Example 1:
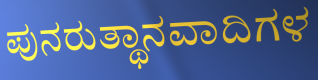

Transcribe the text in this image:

ಪುನರುತ್ಥಾನವಾದಿಗಳ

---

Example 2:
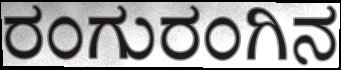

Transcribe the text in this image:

ರಂಗುರಂಗಿನ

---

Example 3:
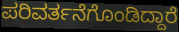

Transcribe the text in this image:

ಪರಿವರ್ತನೆಗೊಂಡಿದ್ದಾರೆ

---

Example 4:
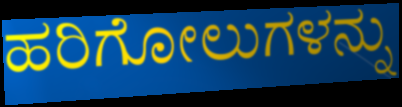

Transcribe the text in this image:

ಹರಿಗೋಲುಗಳನ್ನು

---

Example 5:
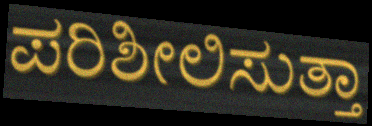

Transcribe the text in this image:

ಪರಿಶೀಲಿಸುತ್ತಾ